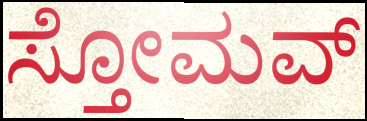
ಸ್ತೋಮವ್